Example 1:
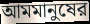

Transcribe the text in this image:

আমমানুষের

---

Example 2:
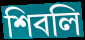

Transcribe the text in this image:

শিবলি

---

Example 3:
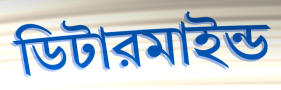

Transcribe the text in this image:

ডিটারমাইন্ড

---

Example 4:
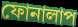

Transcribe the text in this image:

ফোনালাপ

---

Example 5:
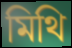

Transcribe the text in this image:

মিথি